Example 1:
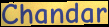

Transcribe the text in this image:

Chandar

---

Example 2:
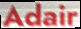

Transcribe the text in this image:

Adair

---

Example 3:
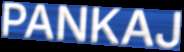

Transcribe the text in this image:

PANKAJ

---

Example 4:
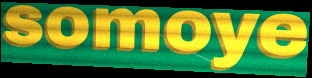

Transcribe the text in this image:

somoye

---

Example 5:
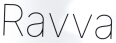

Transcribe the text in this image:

Ravva